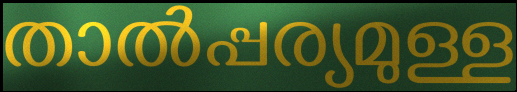
താൽപ്പര്യമുള്ള